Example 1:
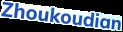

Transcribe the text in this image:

Zhoukoudian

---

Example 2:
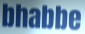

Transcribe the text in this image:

bhabbe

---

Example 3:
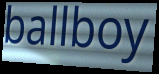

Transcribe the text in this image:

ballboy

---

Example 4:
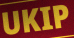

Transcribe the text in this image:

UKIP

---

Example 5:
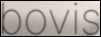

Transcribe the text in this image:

bovis